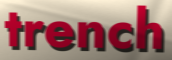
trench